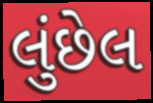
લુંછેલ